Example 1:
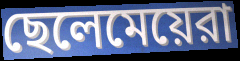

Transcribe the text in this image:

ছেলেমেয়েরা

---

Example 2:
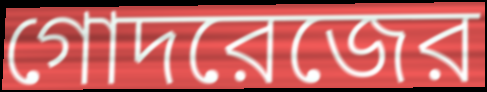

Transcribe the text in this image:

গোদরেজের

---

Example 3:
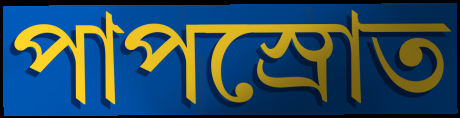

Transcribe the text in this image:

পাপস্রোত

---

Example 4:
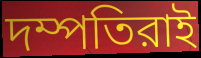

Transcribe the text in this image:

দম্পতিরাই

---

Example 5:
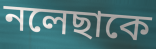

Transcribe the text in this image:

নলেছাকে